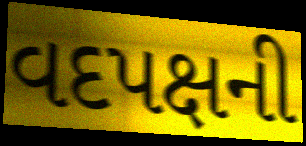
વદપક્ષની